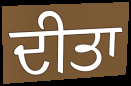
ਦੀਤਾ